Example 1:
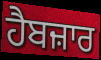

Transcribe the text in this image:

ਹੈਬਜ਼ਾਰ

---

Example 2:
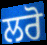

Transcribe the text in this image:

ਲਰੋ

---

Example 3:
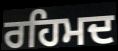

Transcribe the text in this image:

ਰਹਿਮਦ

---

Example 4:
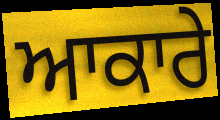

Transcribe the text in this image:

ਆਕਾਰੇ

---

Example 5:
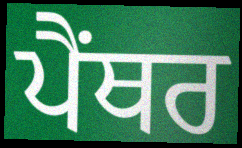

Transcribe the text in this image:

ਪੈੰਥਰ